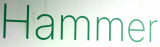
Hammer